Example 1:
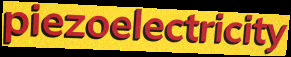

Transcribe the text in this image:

piezoelectricity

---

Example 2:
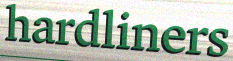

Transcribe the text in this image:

hardliners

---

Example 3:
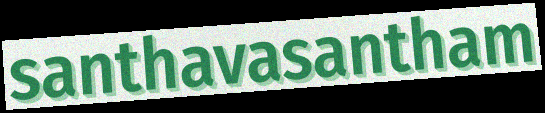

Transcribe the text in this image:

santhavasantham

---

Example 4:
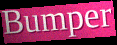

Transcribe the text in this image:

Bumper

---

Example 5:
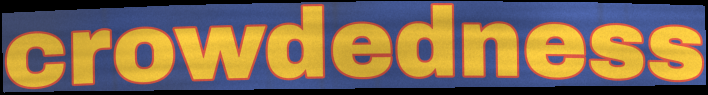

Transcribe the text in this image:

crowdedness